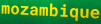
mozambique